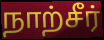
நாற்சீர்